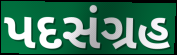
પદસંગ્રહ